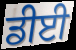
ਡੀਈ